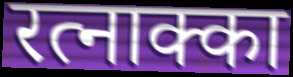
रत्नाक्का